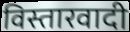
विस्तारवादी